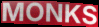
MONKS